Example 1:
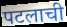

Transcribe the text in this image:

पटलाची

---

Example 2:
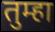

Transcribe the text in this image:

तुम्हा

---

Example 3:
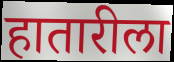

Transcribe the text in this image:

हातारीला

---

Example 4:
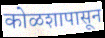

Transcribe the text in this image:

कोळशापासून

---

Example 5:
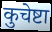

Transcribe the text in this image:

कुचेष्टा